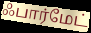
ஃபார்மேட்